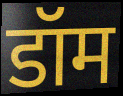
डॉम